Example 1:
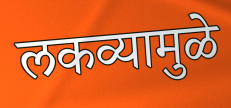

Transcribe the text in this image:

लकव्यामुळे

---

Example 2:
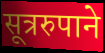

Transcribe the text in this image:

सूत्ररुपाने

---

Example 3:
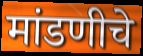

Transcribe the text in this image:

मांडणीचे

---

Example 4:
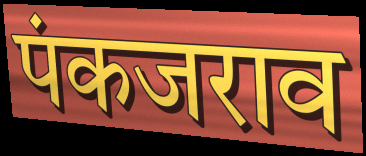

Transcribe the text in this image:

पंकजराव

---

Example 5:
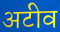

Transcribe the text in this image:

अटीव